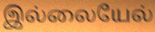
இல்லையேல்